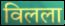
विलला